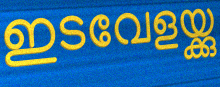
ഇടവേളയ്ക്കു